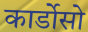
कार्डोसो